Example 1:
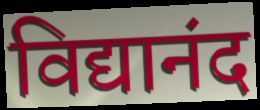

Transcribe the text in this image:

विद्यानंद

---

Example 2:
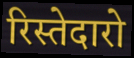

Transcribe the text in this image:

रिस्तेदारो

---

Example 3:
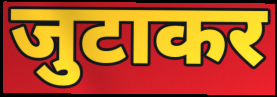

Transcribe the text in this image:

जुटाकर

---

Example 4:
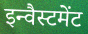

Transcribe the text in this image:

इन्वैस्टमेंट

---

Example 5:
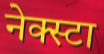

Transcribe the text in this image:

नेक्स्टा